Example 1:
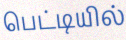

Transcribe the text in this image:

பெட்டியில்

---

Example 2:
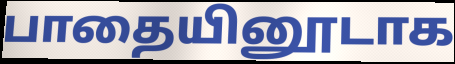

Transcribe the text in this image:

பாதையினூடாக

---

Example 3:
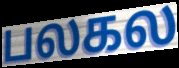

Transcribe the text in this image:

பலகல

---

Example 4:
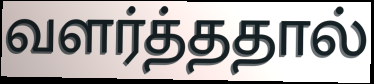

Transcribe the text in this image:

வளர்த்ததால்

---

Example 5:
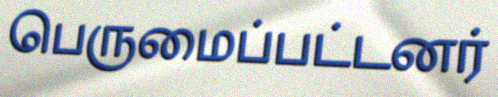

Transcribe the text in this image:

பெருமைப்பட்டனர்